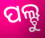
ପଲ୍ଟୁ